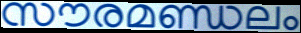
സൗരമണ്ഡലം